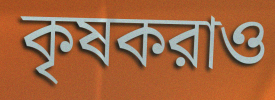
কৃষকরাও